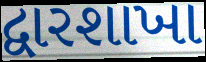
દ્વારશાખા